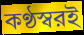
কণ্ঠস্বরই